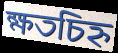
ক্ষতচিহ্ন